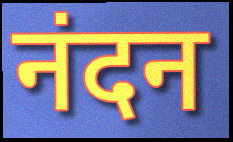
नंदन